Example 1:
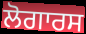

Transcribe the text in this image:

ਲੋਗਾਰਸ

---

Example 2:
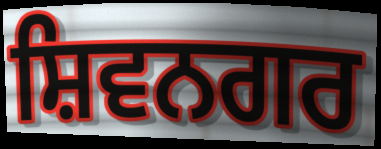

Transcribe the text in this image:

ਸ਼ਿਵਨਗਰ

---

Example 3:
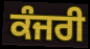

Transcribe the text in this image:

ਕੰਜਰੀ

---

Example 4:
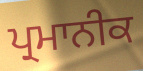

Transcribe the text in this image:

ਪ੍ਰਮਾਨੀਕ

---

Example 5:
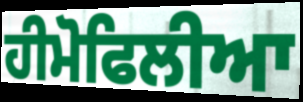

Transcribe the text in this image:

ਹੀਮੋਫਿਲੀਆ